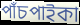
পাঁচপাইকা